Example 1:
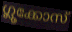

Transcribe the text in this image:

ഗ്ലൂക്കോസ്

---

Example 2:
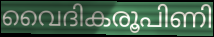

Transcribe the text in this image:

വൈദികരൂപിണി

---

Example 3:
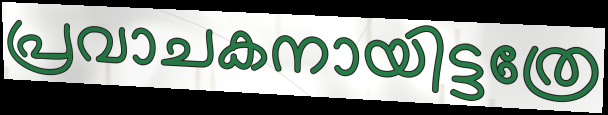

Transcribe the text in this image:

പ്രവാചകനായിട്ടത്രേ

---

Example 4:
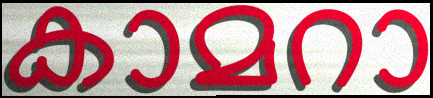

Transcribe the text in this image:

കാമറാ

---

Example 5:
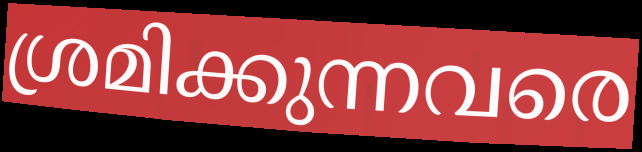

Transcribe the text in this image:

ശ്രമിക്കുന്നവരെ